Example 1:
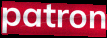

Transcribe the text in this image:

patron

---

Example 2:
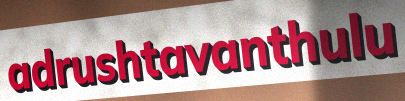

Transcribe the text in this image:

adrushtavanthulu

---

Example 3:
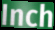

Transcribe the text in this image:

Inch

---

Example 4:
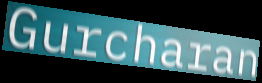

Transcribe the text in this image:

Gurcharan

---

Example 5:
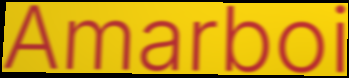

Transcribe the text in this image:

Amarboi